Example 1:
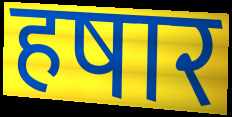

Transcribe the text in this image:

हषार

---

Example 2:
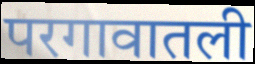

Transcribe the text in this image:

परगावातली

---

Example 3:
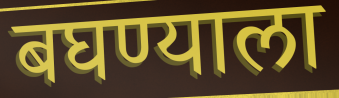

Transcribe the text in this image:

बघण्याला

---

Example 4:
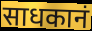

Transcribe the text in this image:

साधकानं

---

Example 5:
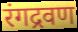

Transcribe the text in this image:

रंगद्रवण